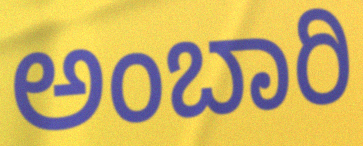
ಅಂಬಾರಿ